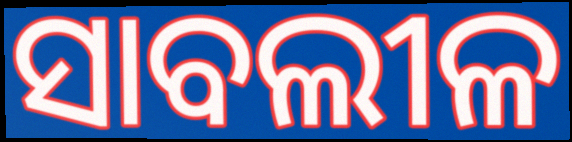
ସାବଲୀଳ